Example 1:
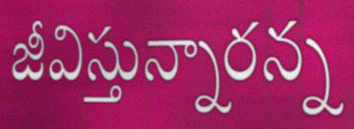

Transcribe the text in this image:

జీవిస్తున్నారన్న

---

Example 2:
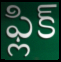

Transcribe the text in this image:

ఫ్లిక్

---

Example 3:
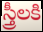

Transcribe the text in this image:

స్త్రీలకి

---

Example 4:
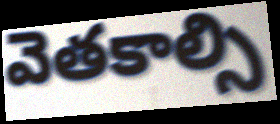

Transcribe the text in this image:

వెతకాల్సి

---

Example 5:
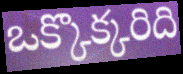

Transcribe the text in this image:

ఒక్కొక్కరిది